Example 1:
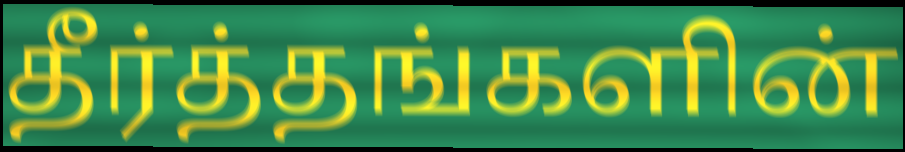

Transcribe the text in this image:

தீர்த்தங்களின்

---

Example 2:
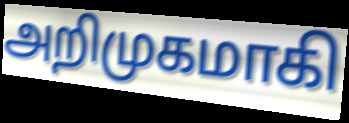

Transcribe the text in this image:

அறிமுகமாகி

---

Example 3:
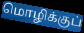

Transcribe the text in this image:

மொழிக்குப்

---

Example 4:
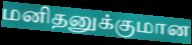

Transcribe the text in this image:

மனிதனுக்குமான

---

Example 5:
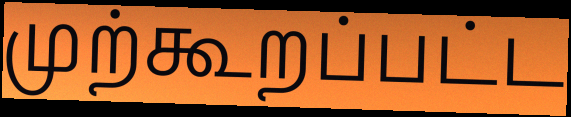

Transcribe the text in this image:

முற்கூறப்பட்ட